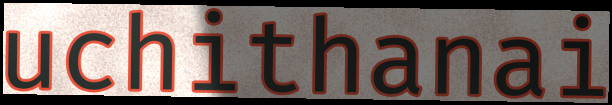
uchithanai